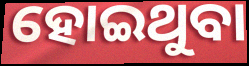
ହୋଇଥୁବା